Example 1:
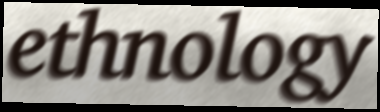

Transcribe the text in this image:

ethnology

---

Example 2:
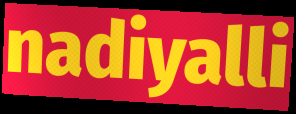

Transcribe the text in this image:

nadiyalli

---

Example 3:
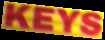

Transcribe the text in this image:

KEYS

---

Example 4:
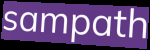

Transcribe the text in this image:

sampath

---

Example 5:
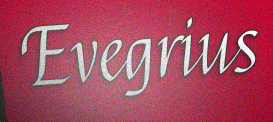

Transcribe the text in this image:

Evegrius